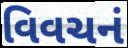
વિવચનં